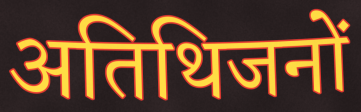
अतिथिजनों